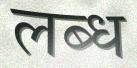
लब्ध